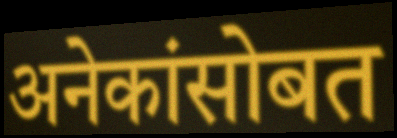
अनेकांसोबत